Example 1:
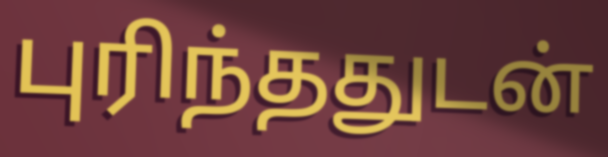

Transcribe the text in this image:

புரிந்ததுடன்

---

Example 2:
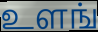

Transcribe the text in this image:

உளங்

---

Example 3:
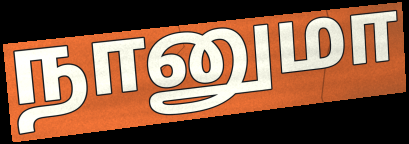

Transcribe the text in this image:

நானுமா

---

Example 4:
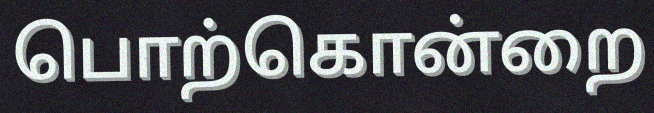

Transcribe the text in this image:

பொற்கொன்றை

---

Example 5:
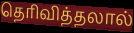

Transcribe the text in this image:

தெரிவித்தலால்